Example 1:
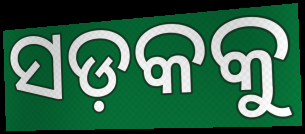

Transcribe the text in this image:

ସଡ଼କକୁ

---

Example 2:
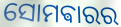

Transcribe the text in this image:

ସୋମଵାରର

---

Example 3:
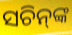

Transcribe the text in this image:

ସଚିନ୍‌ଙ୍କ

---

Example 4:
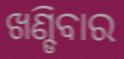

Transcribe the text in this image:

ଖଣ୍ଡିବାର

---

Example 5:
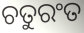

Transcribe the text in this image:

ଚତୁରଂତ